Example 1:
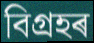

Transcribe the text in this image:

বিগ্ৰহৰ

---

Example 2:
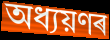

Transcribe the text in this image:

অধ্যয়ণৰ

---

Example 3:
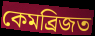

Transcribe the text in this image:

কেমব্ৰিজত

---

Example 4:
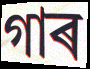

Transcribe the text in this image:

গাৰ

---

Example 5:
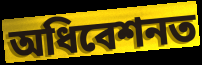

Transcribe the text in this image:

অধিবেশনত